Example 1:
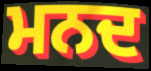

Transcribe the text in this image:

ਮਨਦ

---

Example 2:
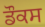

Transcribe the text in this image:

ਡੌਕਸ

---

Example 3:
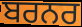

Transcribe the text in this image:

ਬਰਨਰ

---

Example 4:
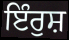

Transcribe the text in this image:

ਇੰਰੁਸ਼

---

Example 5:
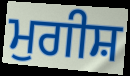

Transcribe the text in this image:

ਮੁਗੀਸ਼